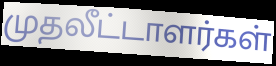
முதலீட்டாளர்கள்